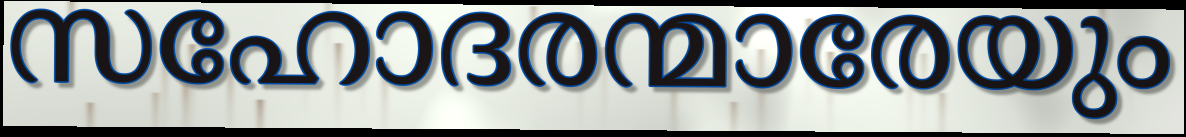
സഹോദരന്മാരേയും